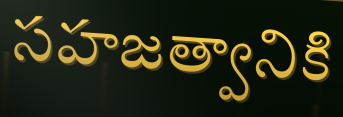
సహజత్వానికి